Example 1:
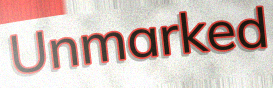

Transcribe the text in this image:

Unmarked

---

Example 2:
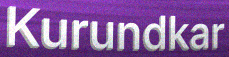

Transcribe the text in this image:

Kurundkar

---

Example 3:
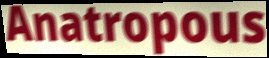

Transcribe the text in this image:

Anatropous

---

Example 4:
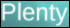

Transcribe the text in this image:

Plenty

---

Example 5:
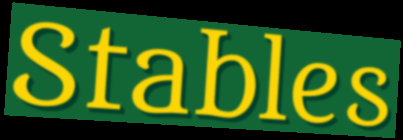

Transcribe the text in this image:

Stables